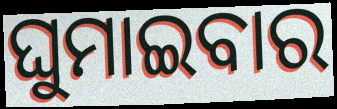
ଘୁମାଇବାର